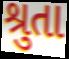
શ્રુતા